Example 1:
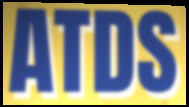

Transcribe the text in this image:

ATDS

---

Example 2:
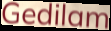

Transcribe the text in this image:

Gedilam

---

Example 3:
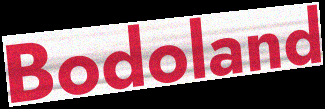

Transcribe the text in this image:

Bodoland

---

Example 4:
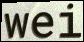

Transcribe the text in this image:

wei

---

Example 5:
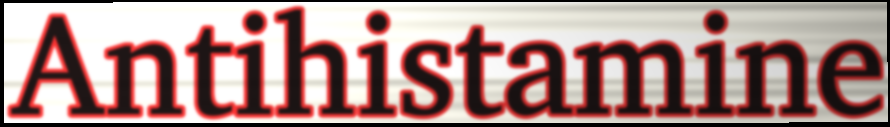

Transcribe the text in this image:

Antihistamine